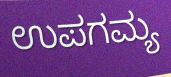
ಉಪಗಮ್ಯ